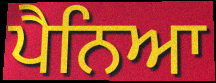
ਪੈਨਿਆ